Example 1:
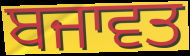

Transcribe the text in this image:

ਬਜਾਵਤ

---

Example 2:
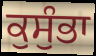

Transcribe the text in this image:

ਕੁਸੁੰਭਾ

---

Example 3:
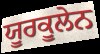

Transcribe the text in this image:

ਯੂਰਕੂਲੇਨ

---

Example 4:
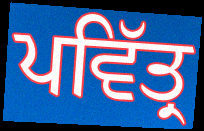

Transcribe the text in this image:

ਪਵਿੱਤ੍ਰ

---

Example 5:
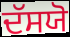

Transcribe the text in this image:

ਦੱਸਯੋ